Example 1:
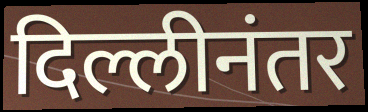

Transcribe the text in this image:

दिल्लीनंतर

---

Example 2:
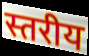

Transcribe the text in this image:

स्तरीय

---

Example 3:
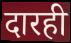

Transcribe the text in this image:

दारही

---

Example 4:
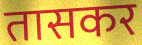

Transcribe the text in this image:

तासकर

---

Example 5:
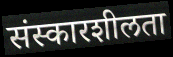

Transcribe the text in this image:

संस्कारशीलता